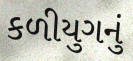
કળીયુગનું